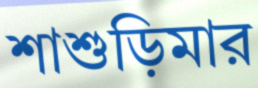
শাশুড়িমার